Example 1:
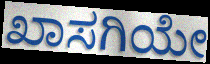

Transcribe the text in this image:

ಖಾಸಗಿಯೇ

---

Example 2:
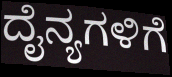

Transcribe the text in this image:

ದೈನ್ಯಗಳಿಗೆ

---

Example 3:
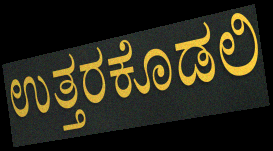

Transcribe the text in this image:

ಉತ್ತರಕೊಡಲಿ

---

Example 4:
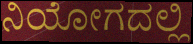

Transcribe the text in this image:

ನಿಯೋಗದಲ್ಲಿ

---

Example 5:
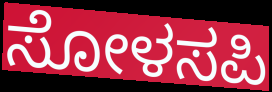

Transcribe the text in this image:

ಸೋಳಸಪಿ